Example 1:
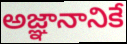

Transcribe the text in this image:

అజ్ఞానానికే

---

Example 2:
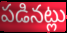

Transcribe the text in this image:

పడినట్లు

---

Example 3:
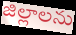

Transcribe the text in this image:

జిల్లాలను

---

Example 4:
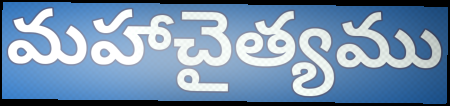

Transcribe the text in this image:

మహాచైత్యము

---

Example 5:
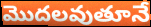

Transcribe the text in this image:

మొదలవుతూనే